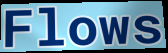
Flows